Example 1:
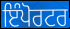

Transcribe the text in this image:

ਇੰਪੋਰਟਰ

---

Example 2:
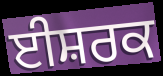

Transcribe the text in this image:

ਈਸ਼ਰਕ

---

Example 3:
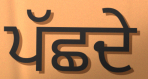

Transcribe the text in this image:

ਪੱਛਦੇ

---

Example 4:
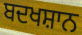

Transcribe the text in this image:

ਬਦਖਸ਼ਾਨ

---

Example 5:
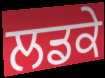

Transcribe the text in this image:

ਲਡਕੇ